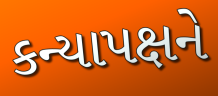
કન્યાપક્ષને